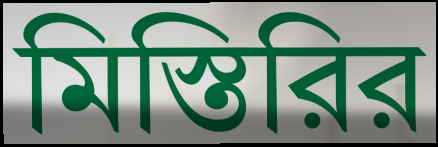
মিস্তিরির